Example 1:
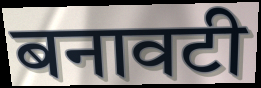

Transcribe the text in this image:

बनावटी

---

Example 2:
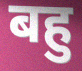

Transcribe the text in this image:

बहु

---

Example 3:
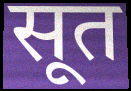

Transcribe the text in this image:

सूत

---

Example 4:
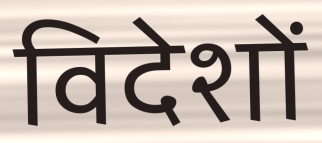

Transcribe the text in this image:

विदेशों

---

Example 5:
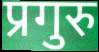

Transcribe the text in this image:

प्रगुरु